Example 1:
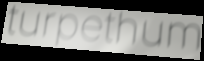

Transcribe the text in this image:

turpethum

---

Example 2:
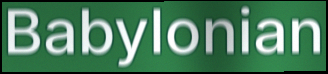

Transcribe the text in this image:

Babylonian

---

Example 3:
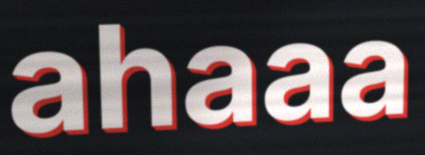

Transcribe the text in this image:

ahaaa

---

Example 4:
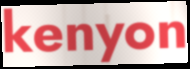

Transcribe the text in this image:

kenyon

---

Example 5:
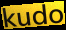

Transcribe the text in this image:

kudo